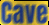
Cave